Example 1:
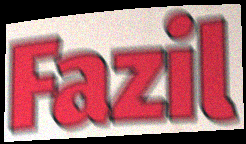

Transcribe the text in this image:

Fazil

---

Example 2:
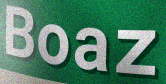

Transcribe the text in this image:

Boaz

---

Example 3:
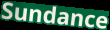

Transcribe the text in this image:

Sundance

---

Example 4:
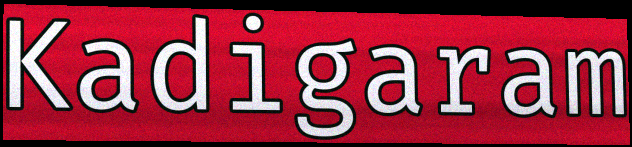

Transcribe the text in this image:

Kadigaram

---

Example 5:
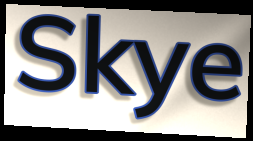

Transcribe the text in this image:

Skye